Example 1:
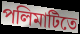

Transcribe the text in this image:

পলিমাটিতে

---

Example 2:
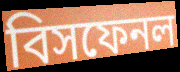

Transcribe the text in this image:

বিসফেনল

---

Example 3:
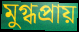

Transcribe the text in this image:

মুগ্ধপ্রায়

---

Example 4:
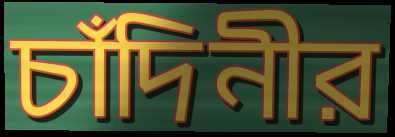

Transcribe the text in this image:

চাঁদিনীর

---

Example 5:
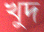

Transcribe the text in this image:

খুদ